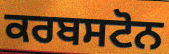
ਕਰਬਸਟੋਨ